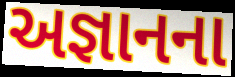
અજ્ઞાનના